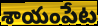
శాయంపేట